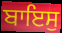
ਬਾਇਸੁ